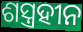
ଶସ୍ତ୍ରହୀନ